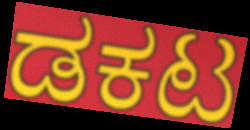
ಡಕಟ